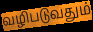
வழிபடுவதும்